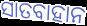
ସାତବାହାନ